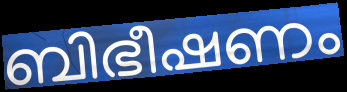
ബിഭീഷണം